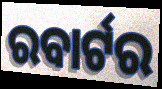
ରବାର୍ଟର